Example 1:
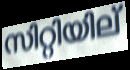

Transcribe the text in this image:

സിറ്റിയില്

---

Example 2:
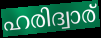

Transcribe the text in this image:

ഹരിദ്വാര്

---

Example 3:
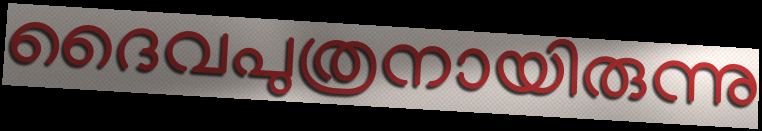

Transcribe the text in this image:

ദൈവപുത്രനായിരുന്നു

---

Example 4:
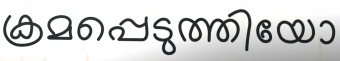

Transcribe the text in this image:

ക്രമപ്പെടുത്തിയോ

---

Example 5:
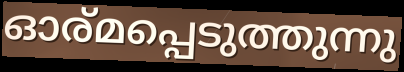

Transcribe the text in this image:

ഓര്മപ്പെടുത്തുന്നു